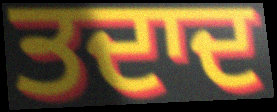
ਤਦਾਦ